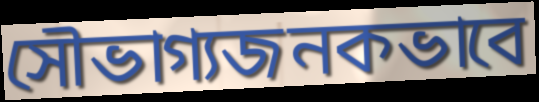
সৌভাগ্যজনকভাবে